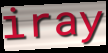
iray